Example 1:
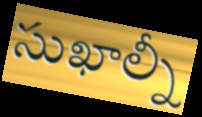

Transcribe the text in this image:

సుఖాల్నీ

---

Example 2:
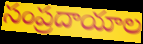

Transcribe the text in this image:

సంప్రదాయాల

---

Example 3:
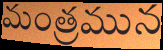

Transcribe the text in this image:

మంత్రమున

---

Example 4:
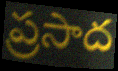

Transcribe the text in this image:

ప్రసాద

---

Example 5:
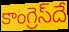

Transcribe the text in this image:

కాంగ్రెస్‌దే